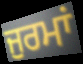
ਜੁਰਮਾਂ